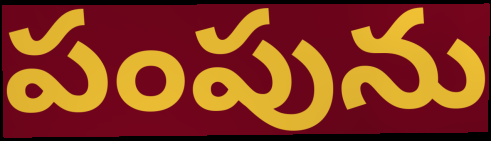
పంపును